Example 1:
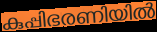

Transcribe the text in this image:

കുപ്പിഭരണിയിൽ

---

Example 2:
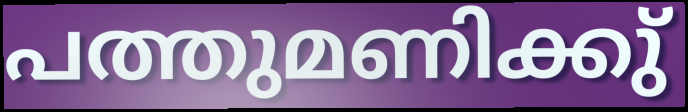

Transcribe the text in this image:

പത്തുമണിക്കു്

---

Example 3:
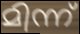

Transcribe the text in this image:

മിന്ന്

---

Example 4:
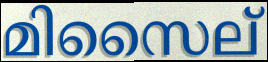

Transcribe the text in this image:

മിസൈല്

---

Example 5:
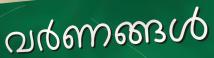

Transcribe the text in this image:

വർണങ്ങൾ